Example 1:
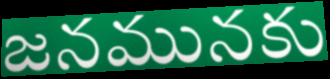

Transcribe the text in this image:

జనమునకు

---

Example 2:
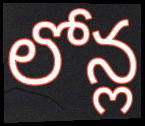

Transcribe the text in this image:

లోన్ల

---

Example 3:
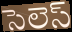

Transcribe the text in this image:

సెలెస్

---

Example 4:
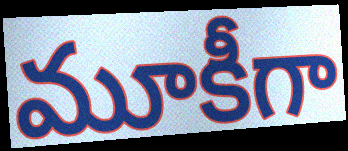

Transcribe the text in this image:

మూకీగా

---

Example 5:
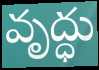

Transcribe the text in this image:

వృద్ధు